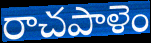
రాచపాళెం